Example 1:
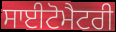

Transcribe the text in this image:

ਸਾਈਟੋਮੈਟਰੀ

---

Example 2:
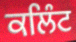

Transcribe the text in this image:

ਕਲਿੰਟ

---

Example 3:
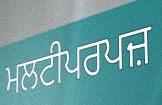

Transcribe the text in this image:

ਮਲਟੀਪਰਪਜ਼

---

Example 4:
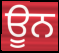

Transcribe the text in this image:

ਊਨ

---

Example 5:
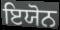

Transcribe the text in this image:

ਇਯੋਨ